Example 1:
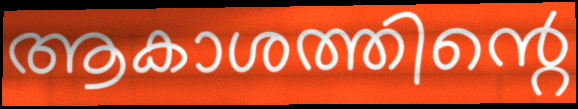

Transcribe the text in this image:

ആകാശത്തിന്റെ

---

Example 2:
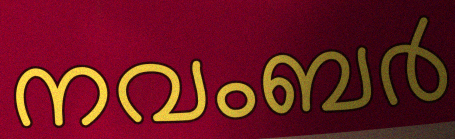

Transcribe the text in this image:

നവംബർ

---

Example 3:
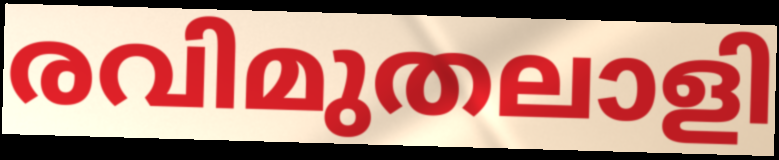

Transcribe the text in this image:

രവിമുതലാളി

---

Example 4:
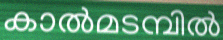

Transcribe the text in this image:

കാൽമടമ്പിൽ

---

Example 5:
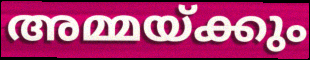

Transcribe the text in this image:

അമ്മയ്ക്കും